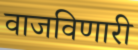
वाजविणारी